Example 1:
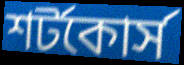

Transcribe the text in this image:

শর্টকোর্স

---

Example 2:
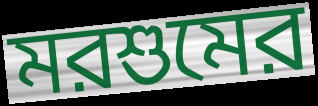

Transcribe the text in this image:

মরশুমের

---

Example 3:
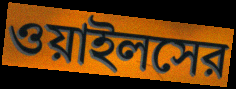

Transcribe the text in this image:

ওয়াইলসের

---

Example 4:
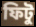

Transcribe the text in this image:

ফিটু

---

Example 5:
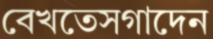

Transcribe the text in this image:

বেখতেসগাদেন